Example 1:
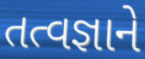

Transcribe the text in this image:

તત્વજ્ઞાને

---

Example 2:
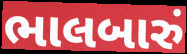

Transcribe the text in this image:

ભાલબારું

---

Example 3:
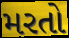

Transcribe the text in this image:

મરતો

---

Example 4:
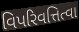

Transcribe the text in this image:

વિપરિવત્તિત્વા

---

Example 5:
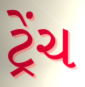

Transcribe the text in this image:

ટ્રેંચ